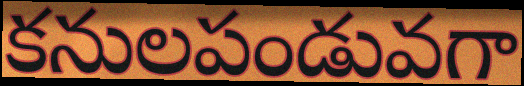
కనులపండువగా